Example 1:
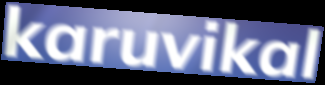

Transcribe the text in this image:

karuvikal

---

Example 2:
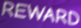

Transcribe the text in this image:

REWARD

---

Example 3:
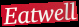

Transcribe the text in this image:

Eatwell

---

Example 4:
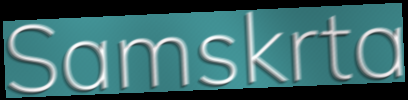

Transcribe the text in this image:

Samskrta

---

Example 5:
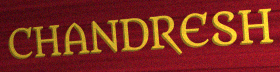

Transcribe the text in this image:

CHANDRESH